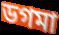
ডগমা